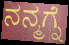
ನನ್ಮಗ್ನೆ